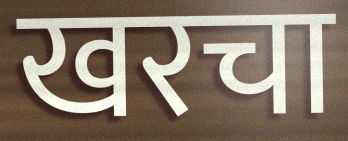
खरचा